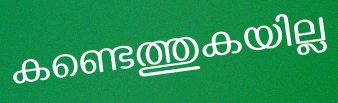
കണ്ടെത്തുകയില്ല